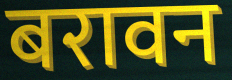
बरावन